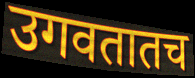
उगवतातच